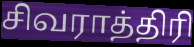
சிவராத்திரி